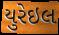
યુરેઇલ